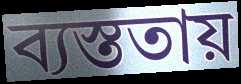
ব্যস্ততায়